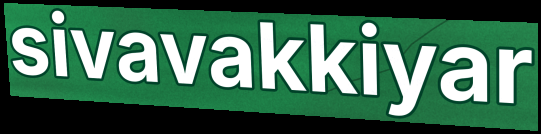
sivavakkiyar